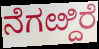
ನೆಗೞ್ದಿರೆ